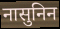
नासुनिन